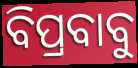
ବିପ୍ରବାବୁ